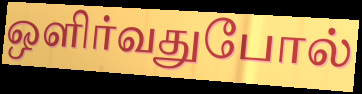
ஒளிர்வதுபோல்